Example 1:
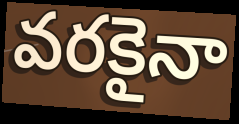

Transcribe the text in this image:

వరకైనా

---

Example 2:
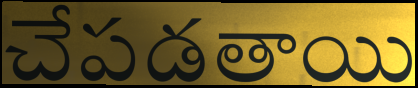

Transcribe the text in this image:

చేపడతాయి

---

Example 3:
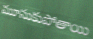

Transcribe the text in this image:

మూసుకుపోతాయి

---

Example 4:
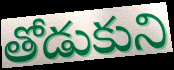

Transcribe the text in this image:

తోడుకుని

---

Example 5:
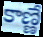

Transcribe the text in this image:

కాణ్ణే